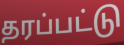
தரப்பட்டு